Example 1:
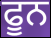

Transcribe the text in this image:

ਫੂਨ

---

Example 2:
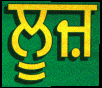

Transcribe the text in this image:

ਲੂਜ਼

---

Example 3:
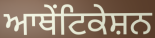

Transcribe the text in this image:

ਆਥੇਂਟਿਕੇਸ਼ਨ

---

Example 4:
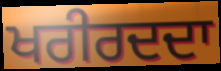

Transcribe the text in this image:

ਖਰੀਰਦਦਾ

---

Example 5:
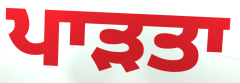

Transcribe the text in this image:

ਪਾੜਤਾ